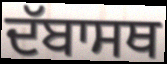
ਦੱਬਾਸਥ